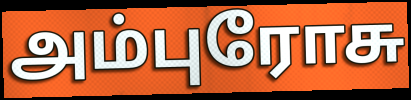
அம்புரோசு